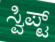
ಸ್ವಿಪ್ಟ್